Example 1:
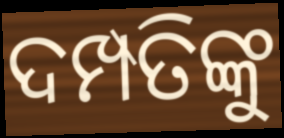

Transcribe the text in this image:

ଦମ୍ପତିଙ୍କୁ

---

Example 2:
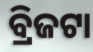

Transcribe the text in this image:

ବ୍ରିଜଟା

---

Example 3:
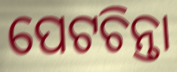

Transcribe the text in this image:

ପେଟଚିନ୍ତା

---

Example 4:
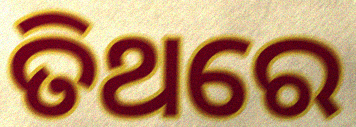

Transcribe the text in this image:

ତିଥରେ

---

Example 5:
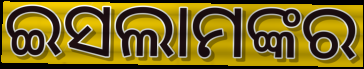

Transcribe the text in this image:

ଇସଲାମଙ୍କର